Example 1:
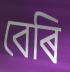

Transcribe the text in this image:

বেৰি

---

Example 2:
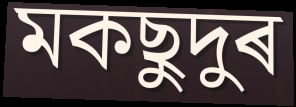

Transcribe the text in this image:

মকছুদুৰ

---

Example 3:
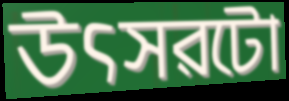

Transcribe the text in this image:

উৎসৱটো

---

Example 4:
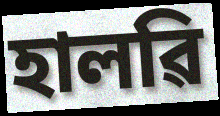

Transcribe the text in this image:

হালৱি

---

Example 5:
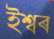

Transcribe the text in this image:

ইশ্বৰ